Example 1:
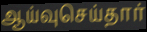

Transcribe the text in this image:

ஆய்வுசெய்தார்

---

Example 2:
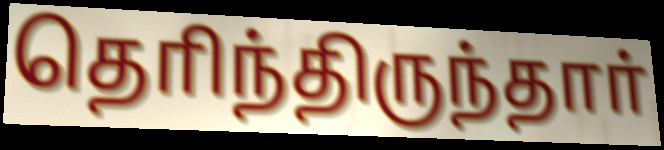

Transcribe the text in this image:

தெரிந்திருந்தார்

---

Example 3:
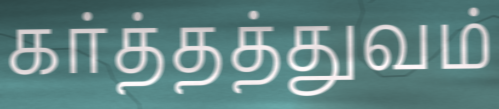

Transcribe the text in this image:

கர்த்தத்துவம்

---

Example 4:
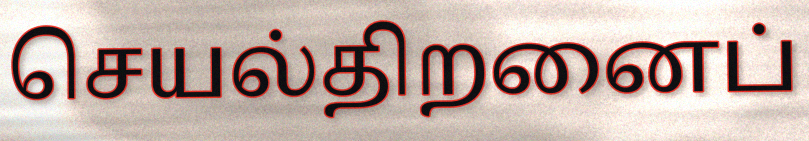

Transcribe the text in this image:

செயல்திறனைப்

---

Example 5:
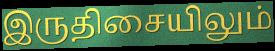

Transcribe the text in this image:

இருதிசையிலும்